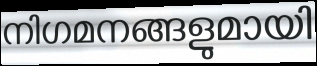
നിഗമനങ്ങളുമായി